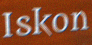
Iskon